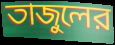
তাজুলের